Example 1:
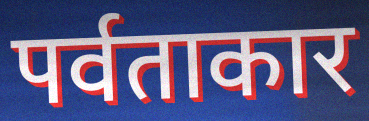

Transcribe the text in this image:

पर्वताकार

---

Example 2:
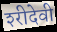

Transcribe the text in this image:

श्रीदेवी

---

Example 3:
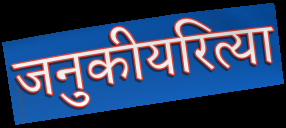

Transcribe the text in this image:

जनुकीयरित्या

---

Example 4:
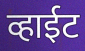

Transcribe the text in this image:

व्हाईट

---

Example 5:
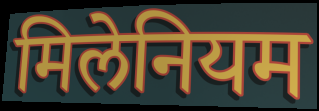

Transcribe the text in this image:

मिलेनियम